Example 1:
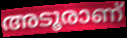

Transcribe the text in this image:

അടൂരാണ്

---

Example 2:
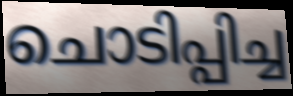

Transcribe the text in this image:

ചൊടിപ്പിച്ച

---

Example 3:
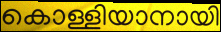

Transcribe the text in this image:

കൊള്ളിയാനായി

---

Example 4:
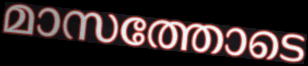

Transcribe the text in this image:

മാസത്തോടെ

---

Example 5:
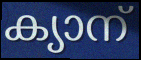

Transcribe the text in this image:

ക്യാന്